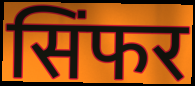
सिंफर